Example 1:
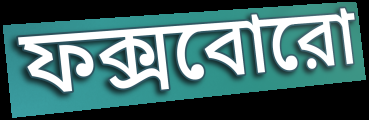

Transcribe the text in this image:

ফক্সবোরো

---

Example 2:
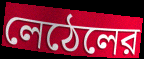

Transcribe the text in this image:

লেঠেলের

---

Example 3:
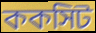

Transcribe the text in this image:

ককসিট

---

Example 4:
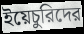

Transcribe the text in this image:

ইয়েচুরিদের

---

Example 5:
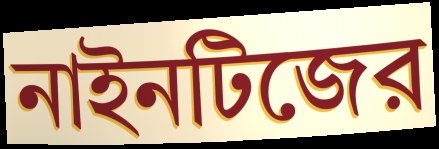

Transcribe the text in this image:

নাইনটিজের